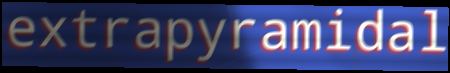
extrapyramidal